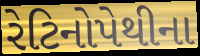
રેટિનોપેથીના